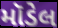
મૉડેલ